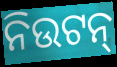
ନିଉଟନ୍